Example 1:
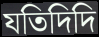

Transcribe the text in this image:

যতিদিদি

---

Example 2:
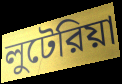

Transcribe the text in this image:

লুটেরিয়া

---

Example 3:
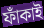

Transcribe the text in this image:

ফাঁকাই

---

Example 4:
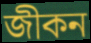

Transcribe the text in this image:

জীকন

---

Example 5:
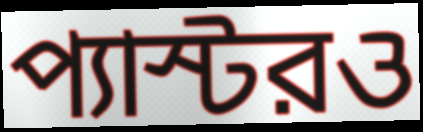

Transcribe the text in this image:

প্যাস্টরও